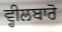
ਵ੍ਹੀਲਬਾਰੋ